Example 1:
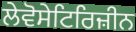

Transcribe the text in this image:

ਲੇਵੋਸੇਟਿਰਿਜ਼ੀਨ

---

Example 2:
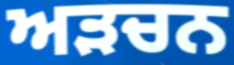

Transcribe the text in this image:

ਅੜਚਨ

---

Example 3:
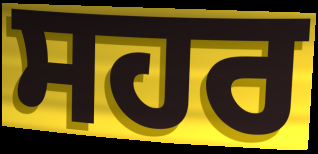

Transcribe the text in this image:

ਸਹਰ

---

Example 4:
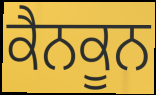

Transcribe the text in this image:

ਕੈਨਕੂਨ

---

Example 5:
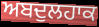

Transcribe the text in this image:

ਅਬਦੁਲਹਾਕ